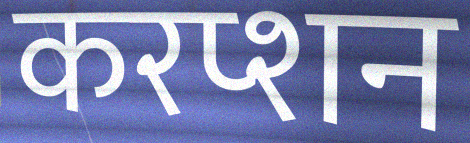
करप्‍शन